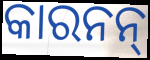
କାରନନ୍